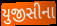
યુજીસીના